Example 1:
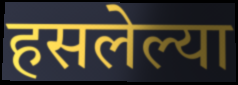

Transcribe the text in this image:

हसलेल्या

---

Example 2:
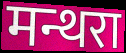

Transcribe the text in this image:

मन्थरा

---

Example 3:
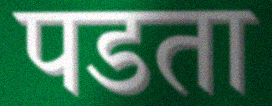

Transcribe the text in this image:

पडता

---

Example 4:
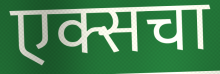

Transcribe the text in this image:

एक्सचा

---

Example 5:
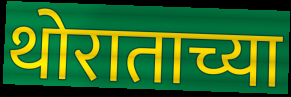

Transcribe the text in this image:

थोराताच्या